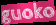
guoko